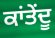
ਕਾਂਤੇਂਦੂ